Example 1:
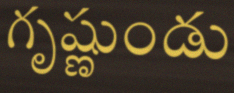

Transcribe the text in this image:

గృష్ణుండు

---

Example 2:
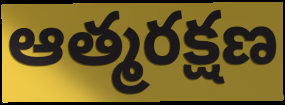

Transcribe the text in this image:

ఆత్మరక్షణ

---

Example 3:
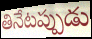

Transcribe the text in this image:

తినేటప్పుడు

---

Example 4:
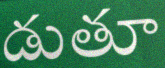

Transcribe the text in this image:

డుతూ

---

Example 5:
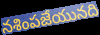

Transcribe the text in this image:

నశింపజేయునది